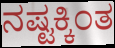
ನಷ್ಟಕ್ಕಿಂತ